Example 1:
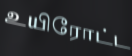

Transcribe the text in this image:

உயிரோட்ட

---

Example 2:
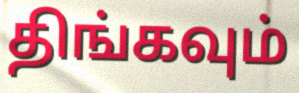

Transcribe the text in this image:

திங்கவும்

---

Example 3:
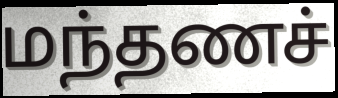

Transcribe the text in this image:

மந்தணச்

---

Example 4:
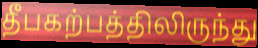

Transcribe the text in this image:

தீபகற்பத்திலிருந்து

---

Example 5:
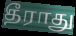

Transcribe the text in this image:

தீராது